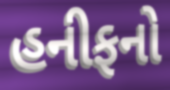
હનીફનો